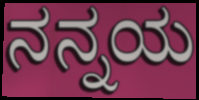
ನನ್ನಯ